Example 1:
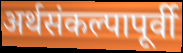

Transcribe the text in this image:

अर्थसंकल्पापूर्वी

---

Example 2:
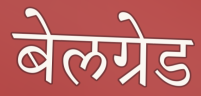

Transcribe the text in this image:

बेलग्रेड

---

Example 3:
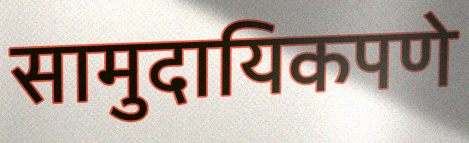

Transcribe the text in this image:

सामुदायिकपणे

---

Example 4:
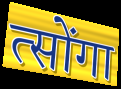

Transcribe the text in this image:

त्सोंगा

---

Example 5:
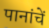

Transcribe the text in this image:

पानांचें